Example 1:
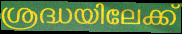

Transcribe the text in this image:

ശ്രദ്ധയിലേക്ക്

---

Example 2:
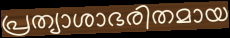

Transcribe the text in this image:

പ്രത്യാശാഭരിതമായ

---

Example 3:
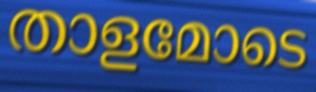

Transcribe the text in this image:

താളമോടെ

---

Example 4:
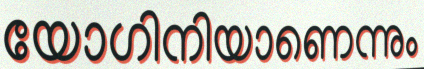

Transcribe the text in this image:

യോഗിനിയാണെന്നും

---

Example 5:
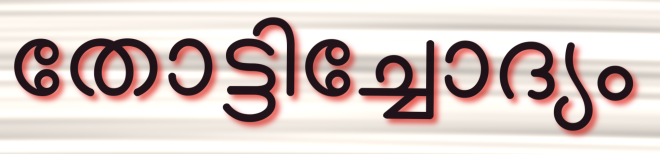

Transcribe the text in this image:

തോട്ടിച്ചോദ്യം